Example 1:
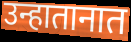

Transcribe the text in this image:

उन्हातानात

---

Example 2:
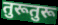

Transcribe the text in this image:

तुरूतुरू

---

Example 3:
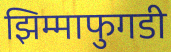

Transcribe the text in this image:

झिम्माफुगडी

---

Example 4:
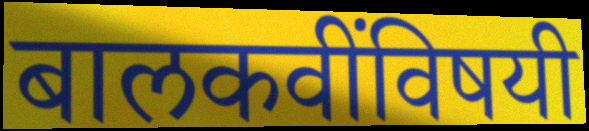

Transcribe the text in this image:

बालकवींविषयी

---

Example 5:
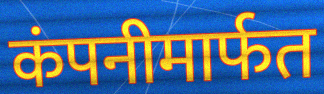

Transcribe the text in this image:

कंपनीमार्फत